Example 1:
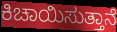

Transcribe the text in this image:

ಕಿಚಾಯಿಸುತ್ತಾನೆ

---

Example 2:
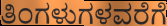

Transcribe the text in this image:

ತಿಂಗಳುಗಳವರೆಗೆ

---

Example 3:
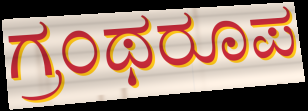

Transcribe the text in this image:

ಗ್ರಂಥರೂಪ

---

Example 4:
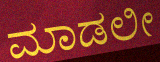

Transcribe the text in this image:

ಮಾಡಲೀ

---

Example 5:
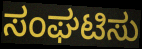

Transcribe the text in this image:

ಸಂಘಟಿಸು